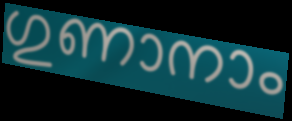
ഗുണാനാം